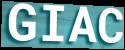
GIAC